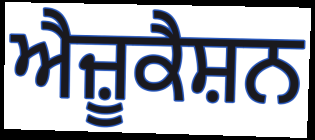
ਐਜ਼ੂਕੈਸ਼ਨ